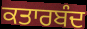
ਕਤਾਰਬੰਦ